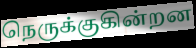
நெருக்குகின்றன